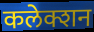
कलेक्शन